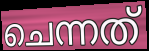
ചെന്നത്